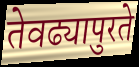
तेवढ्यापुरते